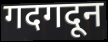
गदगदून